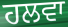
ਹਲਵਾ